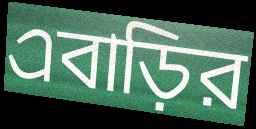
এবাড়ির